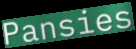
Pansies